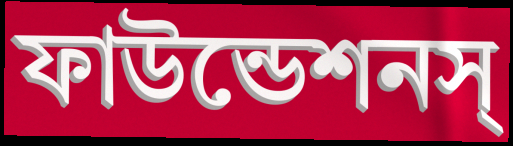
ফাউন্ডেশনস্